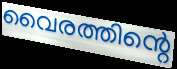
വൈരത്തിന്റെ